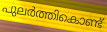
പുലർത്തികൊണ്ട്